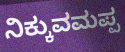
ನಿಕ್ಕುವಮಪ್ಪ